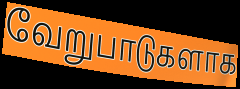
வேறுபாடுகளாக